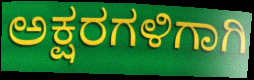
ಅಕ್ಷರಗಳಿಗಾಗಿ